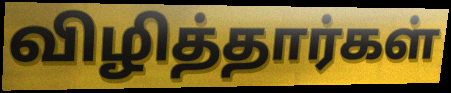
விழித்தார்கள்